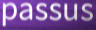
passus